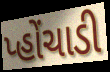
પ્હોંચાડી